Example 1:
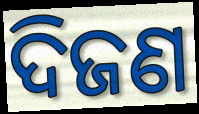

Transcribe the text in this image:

ଦିଜଣ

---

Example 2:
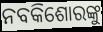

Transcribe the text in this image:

ନବକିଶୋରଙ୍କୁ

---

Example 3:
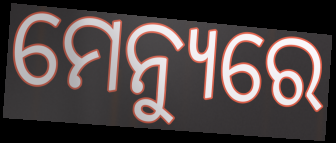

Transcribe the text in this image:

ମେନ୍ୟୁରେ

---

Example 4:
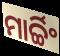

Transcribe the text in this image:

ମାର୍ଚ୍ଚିଂ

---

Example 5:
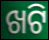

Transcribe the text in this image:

ଖଟି